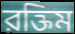
রক্তিম